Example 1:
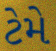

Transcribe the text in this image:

ટેમે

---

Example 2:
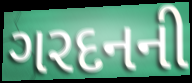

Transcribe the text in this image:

ગરદનની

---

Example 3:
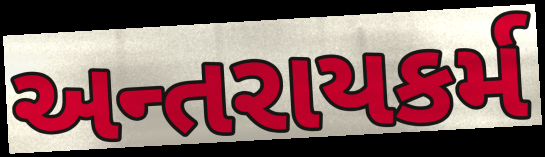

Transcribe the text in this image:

અન્તરાયકર્મ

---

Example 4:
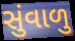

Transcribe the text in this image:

સુંવાળુ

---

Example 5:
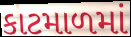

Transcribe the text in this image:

કાટમાળમાં